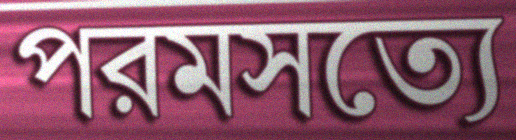
পরমসত্যে